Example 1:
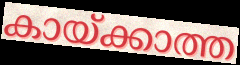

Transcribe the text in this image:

കായ്ക്കാത്ത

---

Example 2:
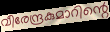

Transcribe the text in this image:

വീരേന്ദ്രകുമാറിന്റെ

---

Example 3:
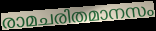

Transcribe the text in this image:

രാമചരിതമാനസം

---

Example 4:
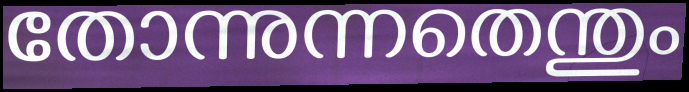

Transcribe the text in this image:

തോന്നുന്നതെന്തും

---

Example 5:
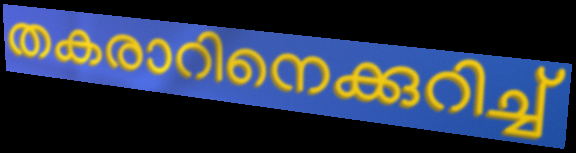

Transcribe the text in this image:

തകരാറിനെക്കുറിച്ച്